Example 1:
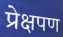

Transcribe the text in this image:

प्रेक्षपण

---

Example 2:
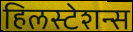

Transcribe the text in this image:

हिलस्टेशन्स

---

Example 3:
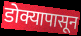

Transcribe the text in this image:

डोक्यापासून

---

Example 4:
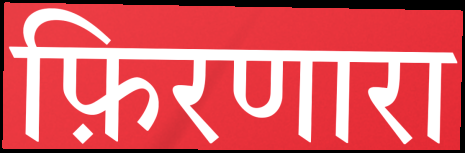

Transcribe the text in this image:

फ़िरणारा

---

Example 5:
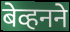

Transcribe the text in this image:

बेव्हनने